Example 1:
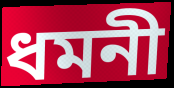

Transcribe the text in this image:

ধমনী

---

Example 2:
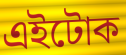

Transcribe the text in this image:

এইটোক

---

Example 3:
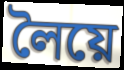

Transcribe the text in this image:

লৈয়ে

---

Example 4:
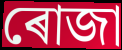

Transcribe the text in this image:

ৰোজা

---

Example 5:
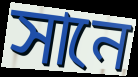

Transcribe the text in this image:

সানে